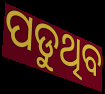
ପଡୁଥିବ